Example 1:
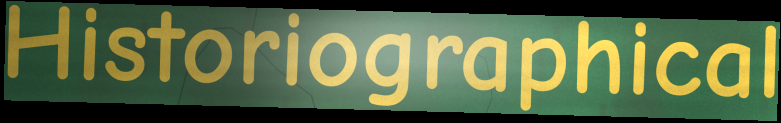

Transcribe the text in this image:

Historiographical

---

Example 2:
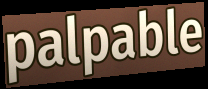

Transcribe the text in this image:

palpable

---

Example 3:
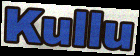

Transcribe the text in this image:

Kullu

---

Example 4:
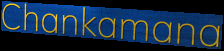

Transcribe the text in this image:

Chankamana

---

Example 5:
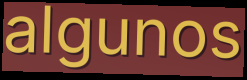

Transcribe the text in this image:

algunos